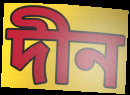
দীন